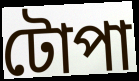
টোপা